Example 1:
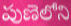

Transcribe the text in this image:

పుణెలోని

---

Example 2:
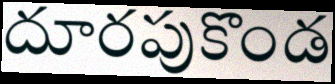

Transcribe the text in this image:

దూరపుకొండ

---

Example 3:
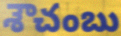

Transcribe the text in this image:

శౌచంబు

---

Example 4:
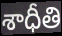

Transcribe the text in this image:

శాధీతి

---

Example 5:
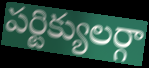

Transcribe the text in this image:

పర్టిక్యులర్గా